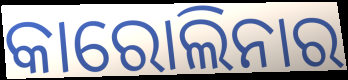
କାରୋଲିନାର